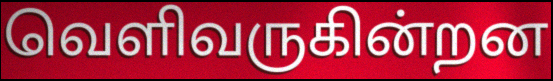
வெளிவருகின்றன